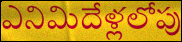
ఎనిమిదేళ్లలోపు